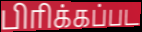
பிரிக்கப்பட